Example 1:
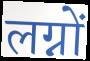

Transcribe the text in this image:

लग्नों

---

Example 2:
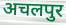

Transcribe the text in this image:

अचलपुर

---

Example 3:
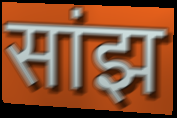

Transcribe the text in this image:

सांझ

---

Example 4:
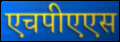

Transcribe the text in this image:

एचपीएएस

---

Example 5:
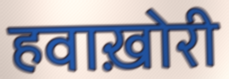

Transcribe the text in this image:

हवाख़ोरी